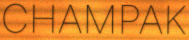
CHAMPAK